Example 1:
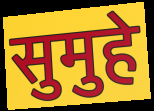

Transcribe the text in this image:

सुमुहे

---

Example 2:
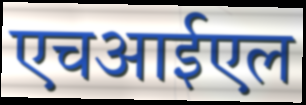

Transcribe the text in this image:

एचआईएल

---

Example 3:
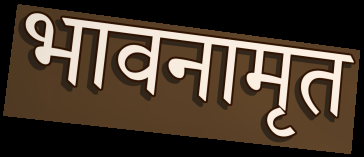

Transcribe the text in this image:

भावनामृत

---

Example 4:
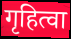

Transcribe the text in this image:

गृहित्वा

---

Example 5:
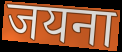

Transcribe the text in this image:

जयना